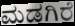
ಮಡಗಿರೆ